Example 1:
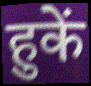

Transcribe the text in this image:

हुकें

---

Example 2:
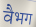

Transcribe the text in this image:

वैभग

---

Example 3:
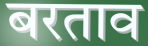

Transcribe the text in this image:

बरताव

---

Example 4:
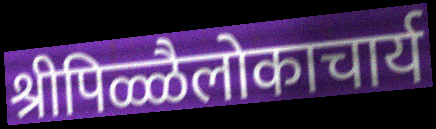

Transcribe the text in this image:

श्रीपिळ्ळैलोकाचार्य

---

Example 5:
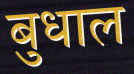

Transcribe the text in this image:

बुधाल